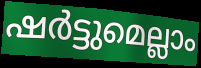
ഷർട്ടുമെല്ലാം